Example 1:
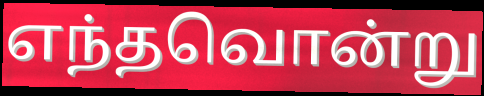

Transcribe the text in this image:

எந்தவொன்று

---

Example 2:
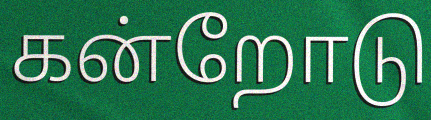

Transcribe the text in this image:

கன்றோடு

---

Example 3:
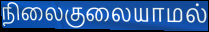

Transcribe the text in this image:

நிலைகுலையாமல்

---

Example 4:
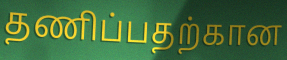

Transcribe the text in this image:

தணிப்பதற்கான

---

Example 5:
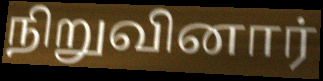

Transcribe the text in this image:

நிறுவினார்